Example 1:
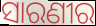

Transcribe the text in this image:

ସାରଣୀର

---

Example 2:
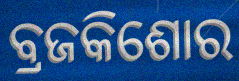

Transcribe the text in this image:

ବ୍ରଜକିଶୋର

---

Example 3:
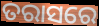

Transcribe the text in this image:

ତରାସରେ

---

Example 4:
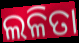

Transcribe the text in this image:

ଲଳିତା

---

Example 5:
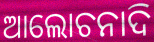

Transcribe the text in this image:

ଆଲୋଚନାଦି